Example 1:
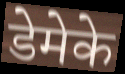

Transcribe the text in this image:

डेमेके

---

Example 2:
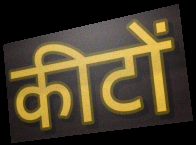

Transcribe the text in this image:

कीटों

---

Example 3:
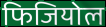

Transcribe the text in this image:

फिजियोल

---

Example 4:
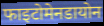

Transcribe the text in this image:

फाइटोमेनडायोन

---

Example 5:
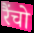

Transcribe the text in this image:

रैंचो